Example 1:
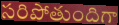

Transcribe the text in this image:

సరిపోతుందిగా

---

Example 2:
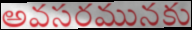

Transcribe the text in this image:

అవసరమునకు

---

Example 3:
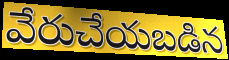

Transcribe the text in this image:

వేరుచేయబడిన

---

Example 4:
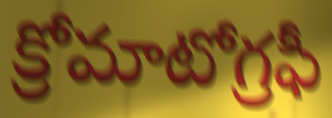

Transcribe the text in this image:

క్రోమాటోగ్రఫీ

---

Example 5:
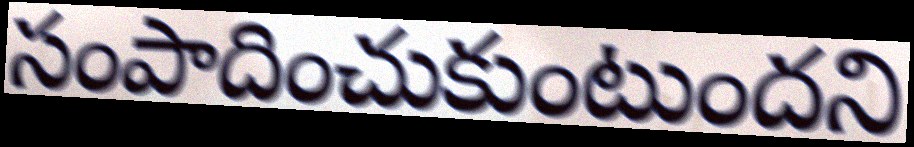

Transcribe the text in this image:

సంపాదించుకుంటుందని